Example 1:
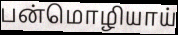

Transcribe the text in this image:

பன்மொழியாய்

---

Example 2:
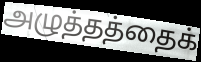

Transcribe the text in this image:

அழுத்தத்தைக்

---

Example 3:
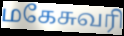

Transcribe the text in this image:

மகேசுவரி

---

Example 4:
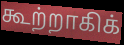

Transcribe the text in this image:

கூற்றாகிக்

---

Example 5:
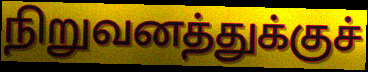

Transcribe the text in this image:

நிறுவனத்துக்குச்